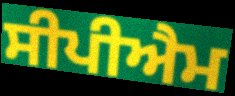
ਸੀਪੀਐਮ